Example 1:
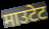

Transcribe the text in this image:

माउटेट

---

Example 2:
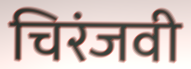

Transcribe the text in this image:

चिरंजवी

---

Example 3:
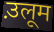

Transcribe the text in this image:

उ़लूम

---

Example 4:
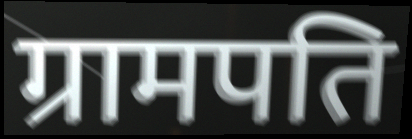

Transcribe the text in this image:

ग्रामपति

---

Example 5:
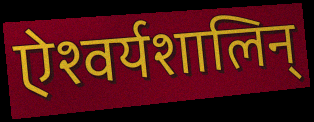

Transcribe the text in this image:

ऐश्वर्यशालिन्